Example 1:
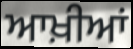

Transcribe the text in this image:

ਆਖ਼ੀਆਂ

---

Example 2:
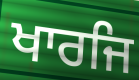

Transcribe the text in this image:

ਖਾਰਜਿ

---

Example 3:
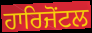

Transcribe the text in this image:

ਹਾਰਿਜੋਂਟਲ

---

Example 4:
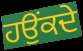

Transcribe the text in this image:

ਹਉਂਕਦੇ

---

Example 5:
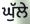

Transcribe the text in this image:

ਘੁੱਲੇ